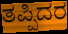
ತಪ್ಪಿದರ